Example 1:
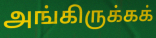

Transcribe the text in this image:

அங்கிருக்கக்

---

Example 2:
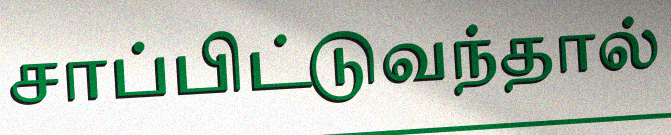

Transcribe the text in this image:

சாப்பிட்டுவந்தால்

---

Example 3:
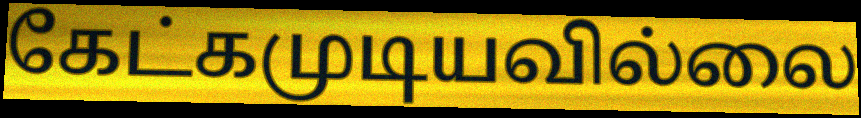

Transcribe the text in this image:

கேட்கமுடியவில்லை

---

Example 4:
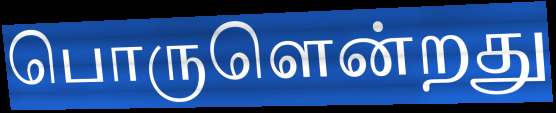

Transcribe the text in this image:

பொருளென்றது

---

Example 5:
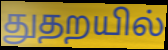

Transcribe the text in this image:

துதறயில்